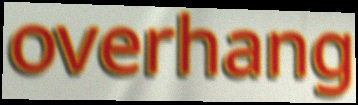
overhang